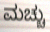
ಮಚ್ಚು